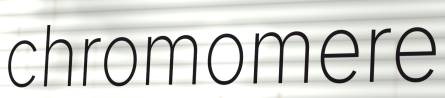
chromomere